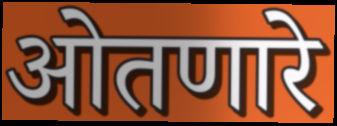
ओतणारे